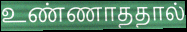
உண்ணாததால்